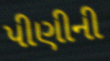
પીણીની